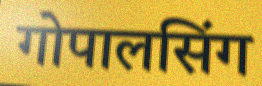
गोपालसिंग